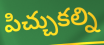
పిచ్చుకల్ని